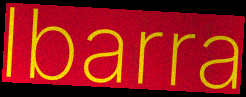
Ibarra